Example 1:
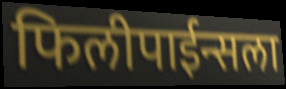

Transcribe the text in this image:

फिलीपाईन्सला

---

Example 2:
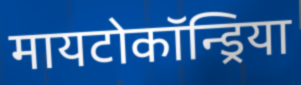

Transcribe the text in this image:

मायटोकॉन्ड्रिया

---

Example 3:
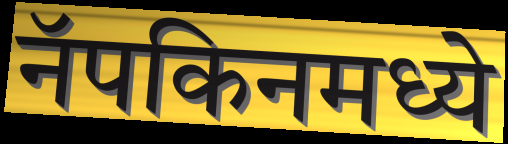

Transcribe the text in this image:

नॅपकिनमध्ये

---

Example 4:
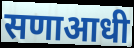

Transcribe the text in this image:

सणाआधी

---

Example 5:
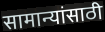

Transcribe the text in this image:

सामान्यांसाठी